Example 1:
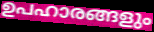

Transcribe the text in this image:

ഉപഹാരങ്ങളും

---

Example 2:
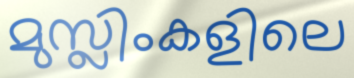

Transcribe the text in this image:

മുസ്ലിംകളിലെ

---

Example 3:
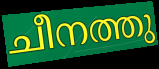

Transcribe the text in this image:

ചീനത്തു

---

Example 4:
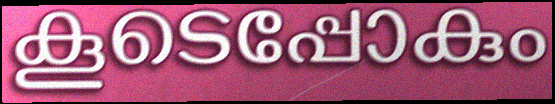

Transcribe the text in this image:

കൂടെപ്പോകും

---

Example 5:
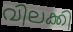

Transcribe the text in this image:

വിലക്കി